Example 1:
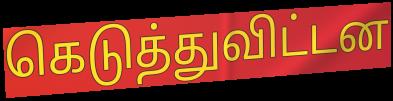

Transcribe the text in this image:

கெடுத்துவிட்டன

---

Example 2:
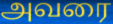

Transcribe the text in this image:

அவரை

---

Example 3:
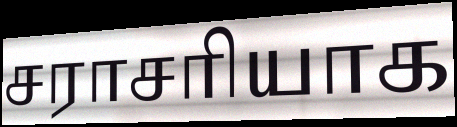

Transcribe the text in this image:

சராசரியாக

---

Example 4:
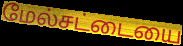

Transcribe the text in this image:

மேல்சட்டையை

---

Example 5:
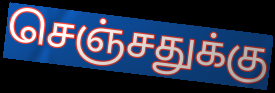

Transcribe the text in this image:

செஞ்சதுக்கு